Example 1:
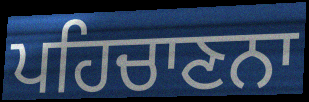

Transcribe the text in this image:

ਪਹਿਚਾਣਨਾ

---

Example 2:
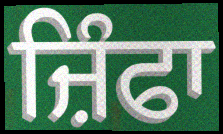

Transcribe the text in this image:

ਜ਼ਿੰਫਾ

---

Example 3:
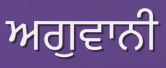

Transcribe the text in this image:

ਅਗੁਵਾਨੀ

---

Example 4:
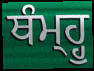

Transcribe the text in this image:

ਥੰਮ੍ਹ੍ਹੁ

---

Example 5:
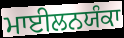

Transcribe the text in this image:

ਮਾਈਲਨਯੰਕਾ